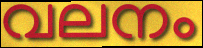
വലനം